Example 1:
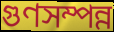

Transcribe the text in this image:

গুণসম্পন্ন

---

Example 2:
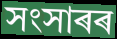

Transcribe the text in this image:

সংসাৰৰ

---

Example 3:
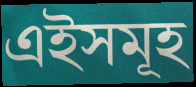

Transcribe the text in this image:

এইসমূহ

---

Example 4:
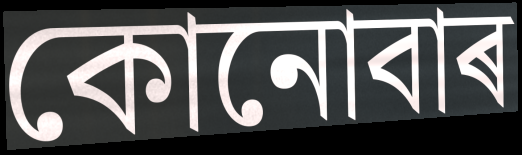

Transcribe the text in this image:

কোনোবাৰ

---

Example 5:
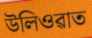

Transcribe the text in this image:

উলিওৱাত